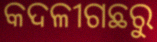
କଦଳୀଗଛରୁ